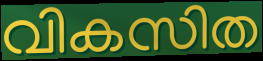
വികസിത